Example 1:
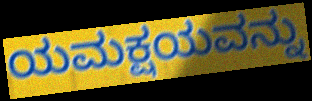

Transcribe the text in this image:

ಯಮಕ್ಷಯವನ್ನು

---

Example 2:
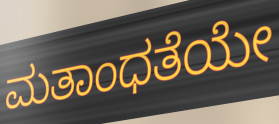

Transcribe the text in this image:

ಮತಾಂಧತೆಯೇ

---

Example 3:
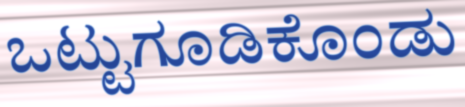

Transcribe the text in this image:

ಒಟ್ಟುಗೂಡಿಕೊಂಡು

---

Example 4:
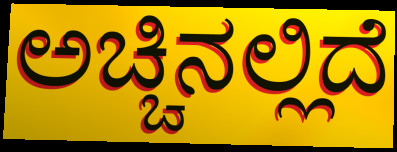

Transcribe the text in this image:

ಅಚ್ಚಿನಲ್ಲಿದೆ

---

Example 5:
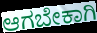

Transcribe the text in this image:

ಆಗಬೇಕಾಗಿ